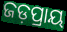
ଜଡ଼ପ୍ରାୟ